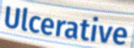
Ulcerative